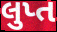
લુપ્ત